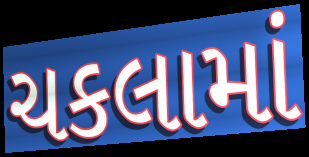
ચકલામાં